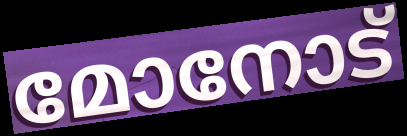
മോനോട്